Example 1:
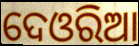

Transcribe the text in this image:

ଦେଓରିଆ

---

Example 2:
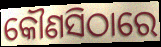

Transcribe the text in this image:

କୌଣସିଠାରେ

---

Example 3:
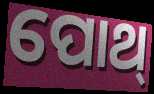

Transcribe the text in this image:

ପୋଥ୍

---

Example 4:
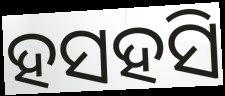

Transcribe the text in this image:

ହସହସି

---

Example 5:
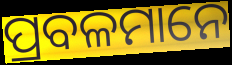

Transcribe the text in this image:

ପ୍ରବଳମାନେ